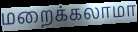
மறைக்கலாமா